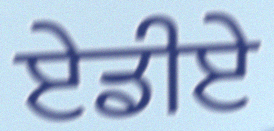
ਏਡੀਏ